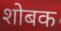
शोबक